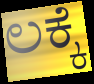
ಲಕ್ಕೆ